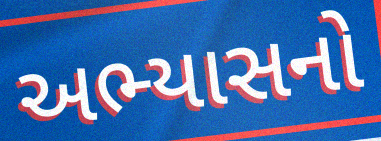
અભ્યાસનો